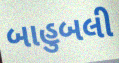
બાહુબલી